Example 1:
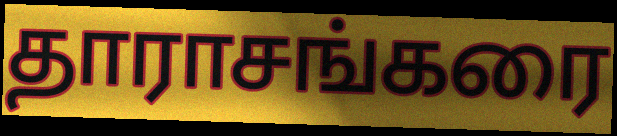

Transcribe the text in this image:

தாராசங்கரை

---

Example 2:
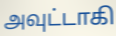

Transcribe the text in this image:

அவுட்டாகி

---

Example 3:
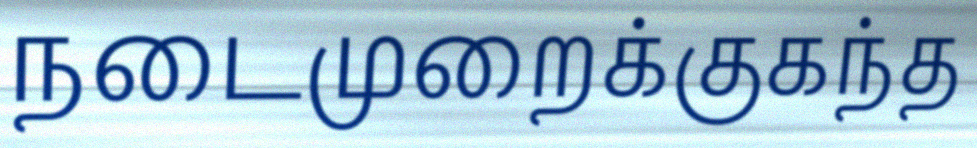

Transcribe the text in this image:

நடைமுறைக்குகந்த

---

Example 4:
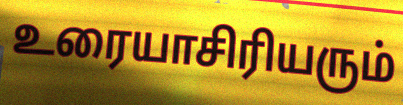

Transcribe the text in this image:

உரையாசிரியரும்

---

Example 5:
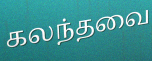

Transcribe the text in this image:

கலந்தவை